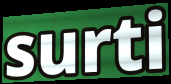
surti